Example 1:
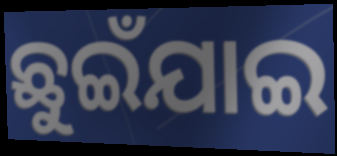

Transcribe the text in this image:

ଛୁଇଁଯାଇ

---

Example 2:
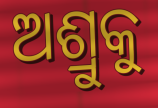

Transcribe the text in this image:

ଅଶ୍ରୁକୁ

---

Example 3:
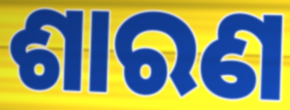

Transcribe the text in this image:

ଶାରଣ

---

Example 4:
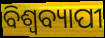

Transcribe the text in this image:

ବିଶ୍ୱବ୍ୟାପୀ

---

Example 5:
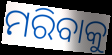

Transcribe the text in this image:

ମରିବାକୁ